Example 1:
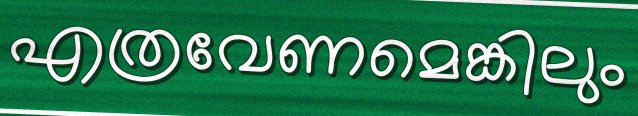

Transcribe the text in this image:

എത്രവേണമെങ്കിലും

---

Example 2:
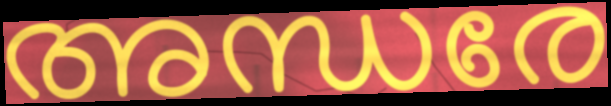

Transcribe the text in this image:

അന്ധരേ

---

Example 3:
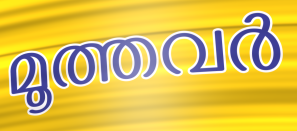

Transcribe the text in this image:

മൂത്തവർ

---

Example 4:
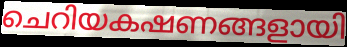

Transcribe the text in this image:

ചെറിയകഷണങ്ങളായി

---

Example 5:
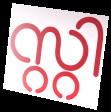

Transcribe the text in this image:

സ്റ്റി